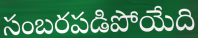
సంబరపడిపోయేది